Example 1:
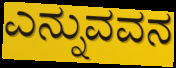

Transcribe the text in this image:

ಎನ್ನುವವನ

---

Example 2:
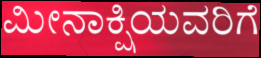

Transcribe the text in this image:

ಮೀನಾಕ್ಷಿಯವರಿಗೆ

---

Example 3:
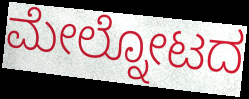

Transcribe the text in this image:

ಮೇಲ್ನೋಟದ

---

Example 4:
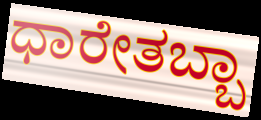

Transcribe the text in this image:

ಧಾರೇತಬ್ಬಾ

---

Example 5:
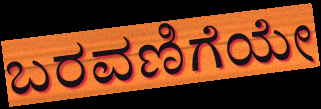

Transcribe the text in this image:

ಬರವಣಿಗೆಯೇ